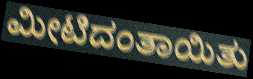
ಮೀಟಿದಂತಾಯಿತು